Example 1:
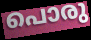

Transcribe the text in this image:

പൊരു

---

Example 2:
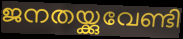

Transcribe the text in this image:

ജനതയ്ക്കുവേണ്ടി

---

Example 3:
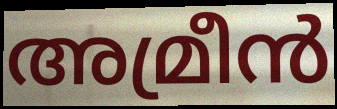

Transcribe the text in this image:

അമ്രീൻ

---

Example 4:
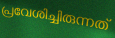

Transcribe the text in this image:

പ്രവേശിച്ചിരുന്നത്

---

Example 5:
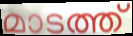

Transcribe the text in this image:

മാടത്ത്